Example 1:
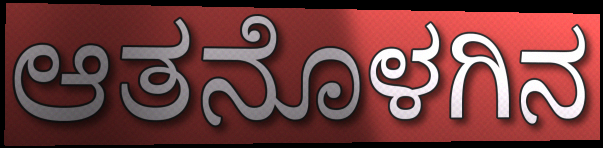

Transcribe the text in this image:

ಆತನೊಳಗಿನ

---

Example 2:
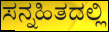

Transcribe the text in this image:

ಸನ್ನಹಿತದಲ್ಲಿ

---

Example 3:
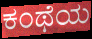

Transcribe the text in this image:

ಕಂಥೆಯ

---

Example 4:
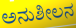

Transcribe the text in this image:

ಅನುಶೀಲನ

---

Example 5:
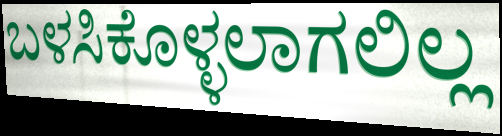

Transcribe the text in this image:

ಬಳಸಿಕೊಳ್ಳಲಾಗಲಿಲ್ಲ